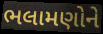
ભલામણોને